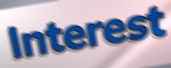
Interest